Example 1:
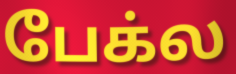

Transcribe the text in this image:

பேக்ல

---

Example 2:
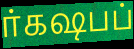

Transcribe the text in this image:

ர்கஷபப்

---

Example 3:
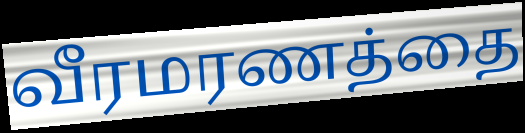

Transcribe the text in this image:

வீரமரணத்தை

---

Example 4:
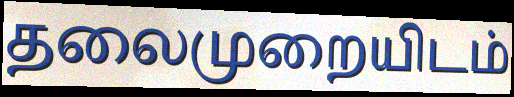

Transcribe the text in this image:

தலைமுறையிடம்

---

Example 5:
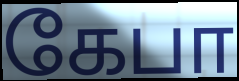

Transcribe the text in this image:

கேபா